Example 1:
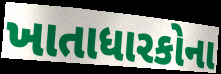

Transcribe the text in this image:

ખાતાધારકોના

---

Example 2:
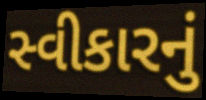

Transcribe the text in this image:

સ્વીકારનું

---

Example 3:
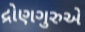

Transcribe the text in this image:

દ્રોણગુરુએ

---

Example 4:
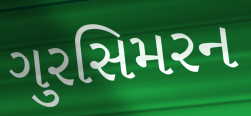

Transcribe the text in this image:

ગુરસિમરન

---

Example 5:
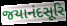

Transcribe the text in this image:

જયાનંદસૂરિ